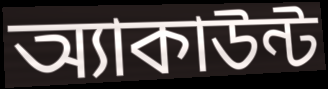
অ্যাকাউন্ট